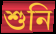
শুনি